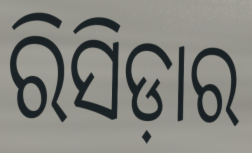
ରିସିଡ଼ାର